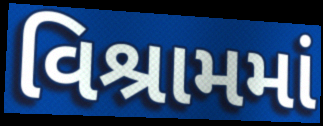
વિશ્રામમાં